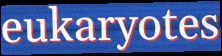
eukaryotes